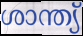
ശാന്ത്യ്